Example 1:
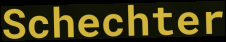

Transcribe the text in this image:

Schechter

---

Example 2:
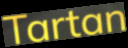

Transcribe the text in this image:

Tartan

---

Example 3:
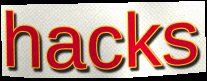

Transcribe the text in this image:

hacks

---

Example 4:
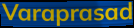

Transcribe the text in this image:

Varaprasad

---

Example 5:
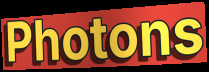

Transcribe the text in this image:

Photons